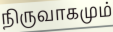
நிருவாகமும்